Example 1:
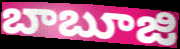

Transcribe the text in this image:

బాబూజి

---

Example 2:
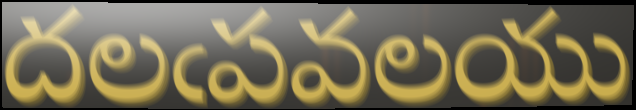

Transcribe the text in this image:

దలఁపవలయు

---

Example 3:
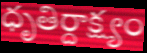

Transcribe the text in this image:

ధృతిర్దాక్ష్యం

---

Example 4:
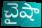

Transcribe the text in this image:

చైషా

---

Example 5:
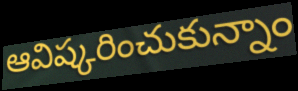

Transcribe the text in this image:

ఆవిష్కరించుకున్నాం